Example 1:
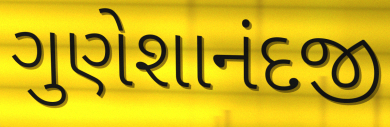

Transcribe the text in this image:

ગુણેશાનંદજી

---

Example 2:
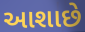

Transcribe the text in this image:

આશાછે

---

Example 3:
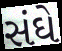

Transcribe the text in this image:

સંઘે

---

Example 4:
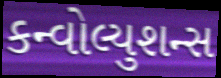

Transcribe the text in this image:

કન્વોલ્યુશન્સ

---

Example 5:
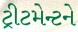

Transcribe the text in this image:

ટ્રીટમેન્ટને